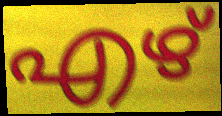
എഴ്